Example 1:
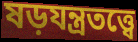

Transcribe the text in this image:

ষড়যন্ত্রতত্ত্বে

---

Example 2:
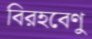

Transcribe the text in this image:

বিরহবেণু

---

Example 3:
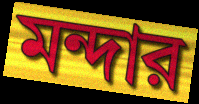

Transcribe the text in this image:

মন্দার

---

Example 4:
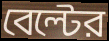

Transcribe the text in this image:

বেল্টের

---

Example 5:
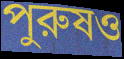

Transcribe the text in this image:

পুরুষও